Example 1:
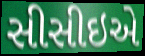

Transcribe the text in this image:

સીસીઇએ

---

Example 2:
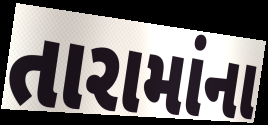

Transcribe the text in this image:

તારામાંના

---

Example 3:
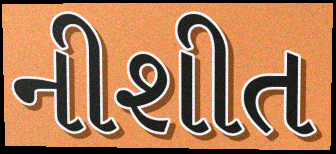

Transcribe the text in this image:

નીશીત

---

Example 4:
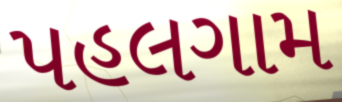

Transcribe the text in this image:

પહલગામ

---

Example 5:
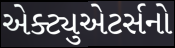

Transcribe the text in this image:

એક્ટ્યુએટર્સનો